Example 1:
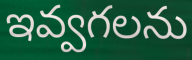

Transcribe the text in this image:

ఇవ్వగలను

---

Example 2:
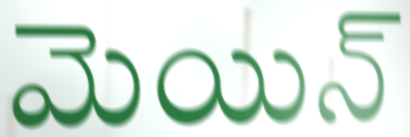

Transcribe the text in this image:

మెయిన్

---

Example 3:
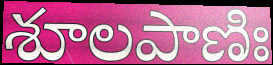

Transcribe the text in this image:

శూలపాణిః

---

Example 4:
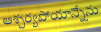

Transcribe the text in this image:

ఆశ్చర్యపోయాన్నేను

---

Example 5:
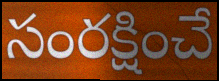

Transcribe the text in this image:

సంరక్షించే